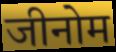
जीनोम